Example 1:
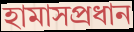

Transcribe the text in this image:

হামাসপ্রধান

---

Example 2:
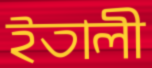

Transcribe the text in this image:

ইতালী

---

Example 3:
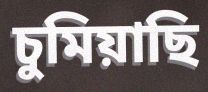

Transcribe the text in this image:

চুমিয়াছি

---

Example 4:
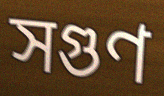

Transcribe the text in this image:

সগুণ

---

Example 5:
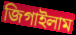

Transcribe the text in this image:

জিগাইলাম